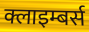
क्लाइम्बर्स